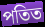
পতিত